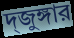
দ্জুঙ্গার